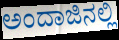
ಅಂದಾಜಿನಲ್ಲಿ